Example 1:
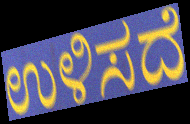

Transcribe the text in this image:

ಉಳಿಸದೆ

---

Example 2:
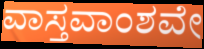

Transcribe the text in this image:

ವಾಸ್ತವಾಂಶವೇ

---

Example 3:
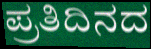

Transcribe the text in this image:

ಪ್ರತಿದಿನದ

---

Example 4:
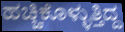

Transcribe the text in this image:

ಹಚ್ಚಿಕೊಳ್ಳುತ್ತಿದ್ದ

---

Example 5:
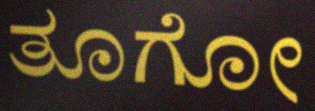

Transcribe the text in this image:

ತೂಗೋ